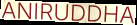
ANIRUDDHA